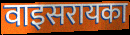
वाइसरायका